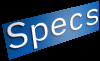
Specs